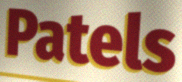
Patels